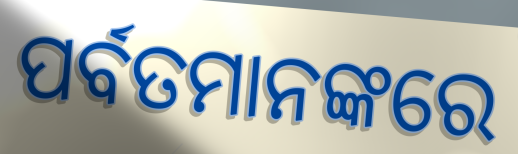
ପର୍ବତମାନଙ୍କରେ